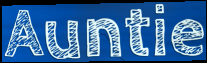
Auntie